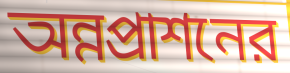
অন্নপ্রাশনের